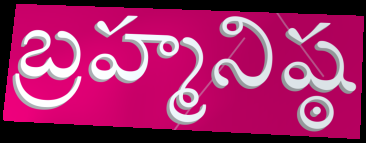
బ్రహ్మనిష్ఠ